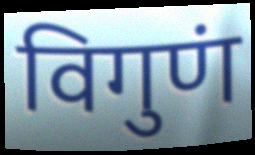
विगुणं